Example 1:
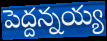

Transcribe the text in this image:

పెద్దన్నయ్య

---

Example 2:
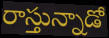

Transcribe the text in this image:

రాస్తున్నాడో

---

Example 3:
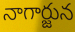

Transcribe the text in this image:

నాగార్జున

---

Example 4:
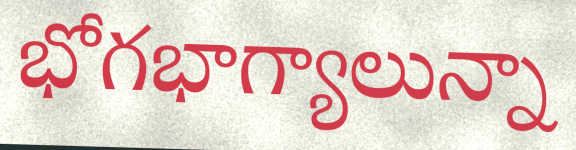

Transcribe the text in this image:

భోగభాగ్యాలున్నా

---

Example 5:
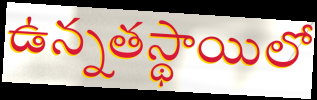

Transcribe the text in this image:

ఉన్నతస్థాయిలో